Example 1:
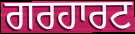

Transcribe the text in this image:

ਗਰਹਾਰਟ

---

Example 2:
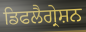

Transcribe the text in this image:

ਡਿਫਲੈਗ੍ਰੇਸ਼ਨ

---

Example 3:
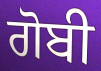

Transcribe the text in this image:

ਗੋਬੀ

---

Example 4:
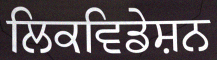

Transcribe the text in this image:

ਲਿਕਵਿਡੇਸ਼ਨ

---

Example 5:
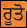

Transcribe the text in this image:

ਰੂਤੋ